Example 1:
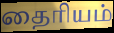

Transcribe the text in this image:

தைரியம்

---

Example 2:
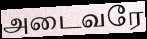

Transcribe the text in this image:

அடைவரே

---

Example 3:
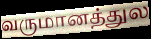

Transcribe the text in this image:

வருமானத்துல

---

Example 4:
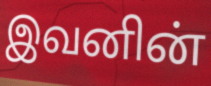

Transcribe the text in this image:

இவனின்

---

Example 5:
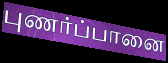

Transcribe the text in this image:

புணர்ப்பானை